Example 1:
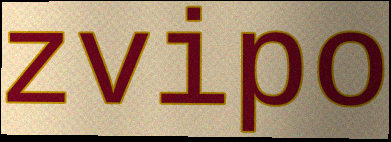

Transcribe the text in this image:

zvipo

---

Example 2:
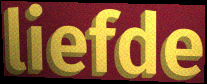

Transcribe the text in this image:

liefde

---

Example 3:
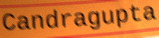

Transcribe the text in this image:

Candragupta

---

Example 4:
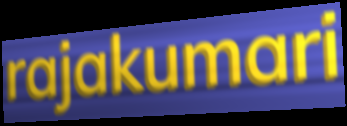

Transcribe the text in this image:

rajakumari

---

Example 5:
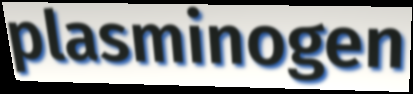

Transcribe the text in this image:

plasminogen